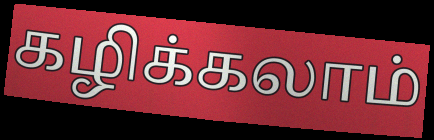
கழிக்கலாம்